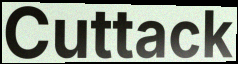
Cuttack